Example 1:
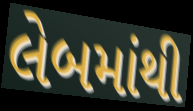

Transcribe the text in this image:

લેબમાંથી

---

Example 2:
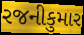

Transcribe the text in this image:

રજનીકુમાર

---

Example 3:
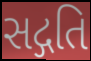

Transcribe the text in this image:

સદ્ગતિ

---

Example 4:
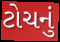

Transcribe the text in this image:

ટોચનું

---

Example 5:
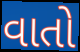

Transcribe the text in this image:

વાતો